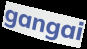
gangai